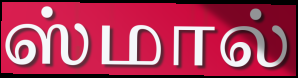
ஸ்மால்